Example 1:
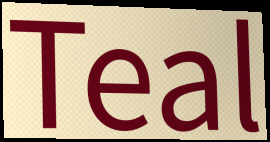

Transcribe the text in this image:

Teal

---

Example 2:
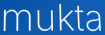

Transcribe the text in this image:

mukta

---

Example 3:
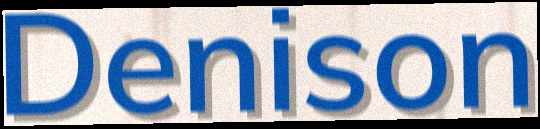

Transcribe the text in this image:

Denison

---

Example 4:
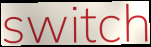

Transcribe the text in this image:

switch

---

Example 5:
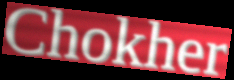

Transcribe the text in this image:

Chokher